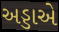
અડ્ડાએ